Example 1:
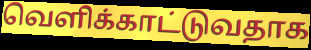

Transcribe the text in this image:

வெளிக்காட்டுவதாக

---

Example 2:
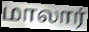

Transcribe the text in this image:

மாலார்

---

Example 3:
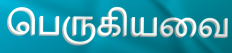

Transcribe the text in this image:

பெருகியவை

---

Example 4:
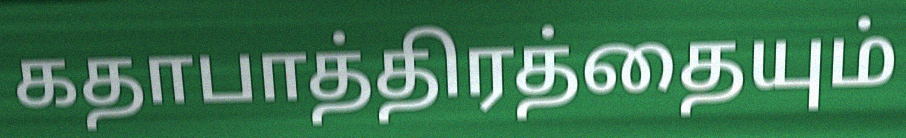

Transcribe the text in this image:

கதாபாத்திரத்தையும்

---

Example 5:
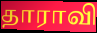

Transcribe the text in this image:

தாராவி